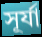
সূর্যা